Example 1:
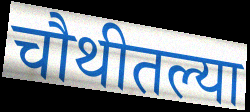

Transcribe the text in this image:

चौथीतल्या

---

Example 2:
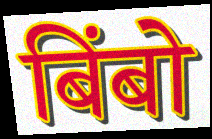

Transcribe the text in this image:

बिंबो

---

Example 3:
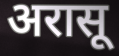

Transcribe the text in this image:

अरासू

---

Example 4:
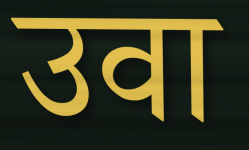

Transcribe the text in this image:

उवा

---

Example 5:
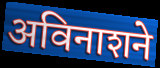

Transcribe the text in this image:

अविनाशने